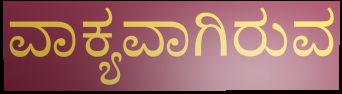
ವಾಕ್ಯವಾಗಿರುವ